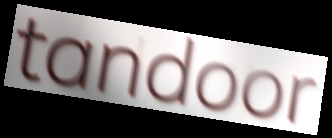
tandoor